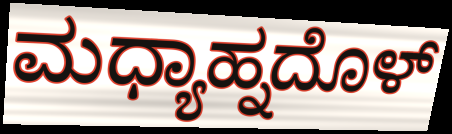
ಮಧ್ಯಾಹ್ನದೊಳ್